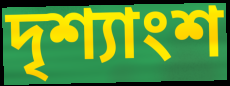
দৃশ্যাংশ